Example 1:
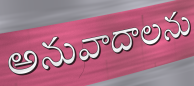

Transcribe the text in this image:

అనువాదాలను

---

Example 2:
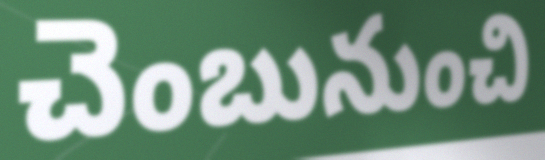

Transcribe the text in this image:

చెంబునుంచి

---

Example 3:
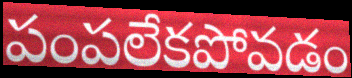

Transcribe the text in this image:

పంపలేకపోవడం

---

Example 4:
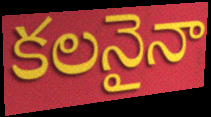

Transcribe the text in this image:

కలనైనా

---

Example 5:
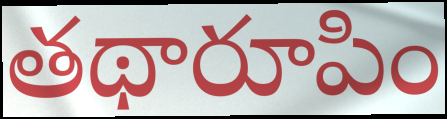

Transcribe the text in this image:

తథారూపిం